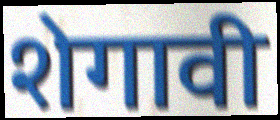
शेगावी